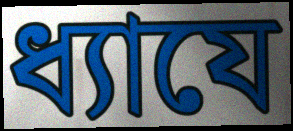
ধ্যাযে